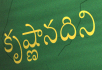
కృష్ణానదిని